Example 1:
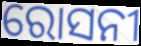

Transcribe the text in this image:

ରୋସନୀ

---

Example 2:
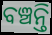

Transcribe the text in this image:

ବଞ୍ଚନ୍ତି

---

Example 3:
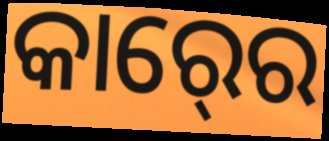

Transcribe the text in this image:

କାର୍‍ରେ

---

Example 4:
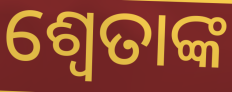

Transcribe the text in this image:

ଶ୍ଵେତାଙ୍କ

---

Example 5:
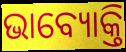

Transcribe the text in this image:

ଭାବ୍ୟୋକ୍ତି